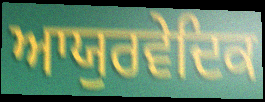
ਆਯੁਰਵੇਦਿਕ